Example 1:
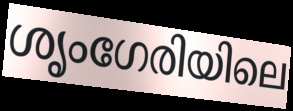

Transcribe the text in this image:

ശൃംഗേരിയിലെ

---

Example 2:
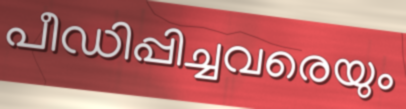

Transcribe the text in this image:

പീഡിപ്പിച്ചവരെയും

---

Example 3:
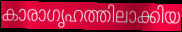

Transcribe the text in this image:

കാരാഗൃഹത്തിലാക്കിയ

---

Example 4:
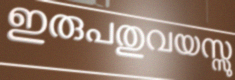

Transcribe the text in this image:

ഇരുപതുവയസ്സു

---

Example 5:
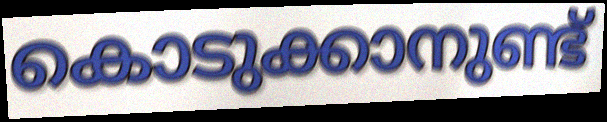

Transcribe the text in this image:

കൊടുക്കാനുണ്ട്